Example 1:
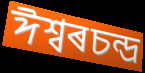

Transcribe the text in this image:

ঈশ্বৰচন্দ্ৰ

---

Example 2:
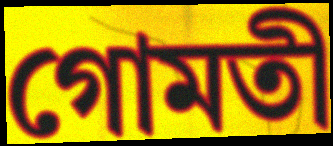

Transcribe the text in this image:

গোমতী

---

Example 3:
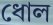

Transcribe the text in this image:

ধোল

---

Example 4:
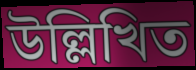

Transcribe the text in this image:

উল্লিখিত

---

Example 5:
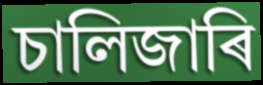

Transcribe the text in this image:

চালিজাৰি